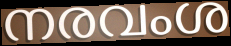
നരവംശ